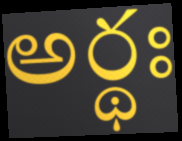
అర్థః